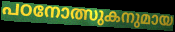
പഠനോത്സുകനുമായ